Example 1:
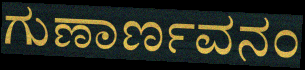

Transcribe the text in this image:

ಗುಣಾರ್ಣವನಂ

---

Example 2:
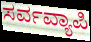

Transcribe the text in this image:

ಸರ್ವವ್ಯಾಪಿ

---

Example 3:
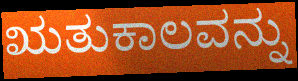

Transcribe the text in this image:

ಋತುಕಾಲವನ್ನು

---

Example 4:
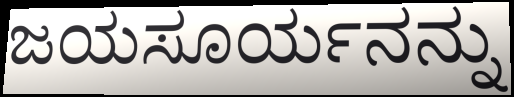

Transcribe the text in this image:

ಜಯಸೂರ್ಯನನ್ನು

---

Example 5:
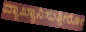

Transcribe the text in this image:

ವ್ಯಾಖ್ಯಾನಿಸುತ್ತೀರೋ